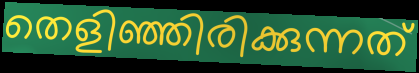
തെളിഞ്ഞിരിക്കുന്നത്